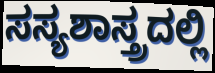
ಸಸ್ಯಶಾಸ್ತ್ರದಲ್ಲಿ